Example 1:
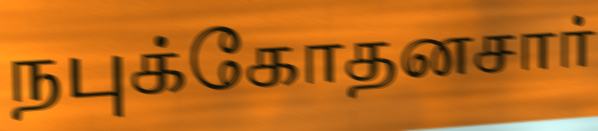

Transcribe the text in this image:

நபுக்கோதனசார்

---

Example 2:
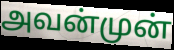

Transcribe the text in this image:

அவன்முன்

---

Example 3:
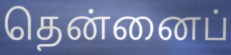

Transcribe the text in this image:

தென்னைப்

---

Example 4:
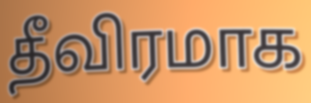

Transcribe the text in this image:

தீவிரமாக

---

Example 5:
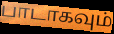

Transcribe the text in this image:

பாடாகவும்